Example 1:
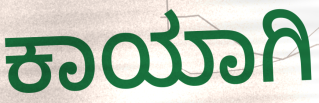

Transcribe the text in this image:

ಕಾಯಾಗಿ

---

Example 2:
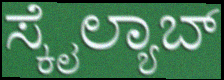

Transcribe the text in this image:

ಸ್ಕೈಲ್ಯಾಬ್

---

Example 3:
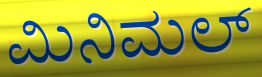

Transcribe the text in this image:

ಮಿನಿಮಲ್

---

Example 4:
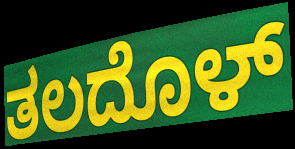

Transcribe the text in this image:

ತಲದೊಳ್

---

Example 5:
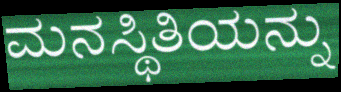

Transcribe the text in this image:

ಮನಸ್ಥಿತಿಯನ್ನು